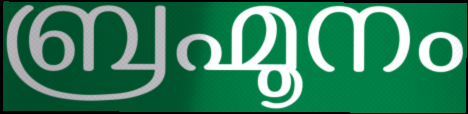
ബ്രഹ്മൂനം